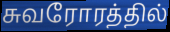
சுவரோரத்தில்